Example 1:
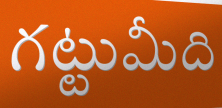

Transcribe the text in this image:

గట్టుమీది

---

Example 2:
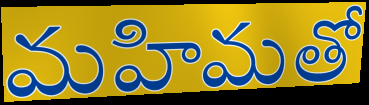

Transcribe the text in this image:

మహిమతో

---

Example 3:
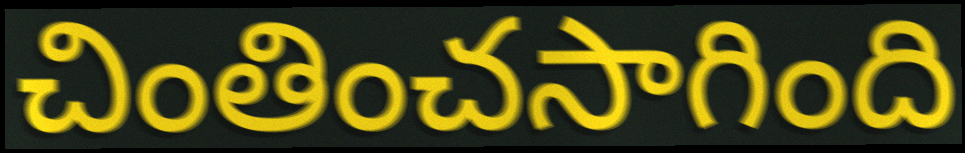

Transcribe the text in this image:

చింతించసాగింది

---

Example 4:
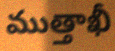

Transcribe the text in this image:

ముత్తాఖీ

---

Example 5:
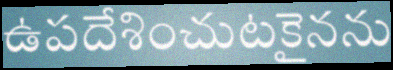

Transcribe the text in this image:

ఉపదేశించుటకైనను